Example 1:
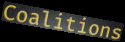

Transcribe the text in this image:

Coalitions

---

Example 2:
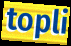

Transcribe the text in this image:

topli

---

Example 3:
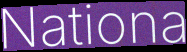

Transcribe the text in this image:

Nationa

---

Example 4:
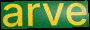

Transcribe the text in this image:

arve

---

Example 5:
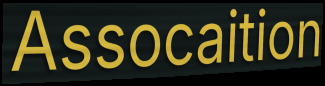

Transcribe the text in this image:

Assocaition